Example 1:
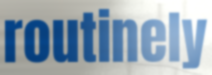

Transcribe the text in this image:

routinely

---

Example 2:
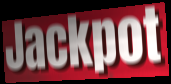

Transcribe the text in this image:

Jackpot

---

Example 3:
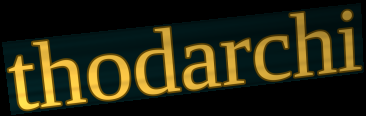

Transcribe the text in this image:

thodarchi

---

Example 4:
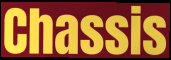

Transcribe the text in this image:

Chassis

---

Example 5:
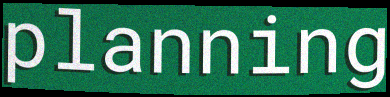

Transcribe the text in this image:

planning